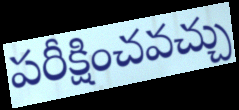
పరీక్షించవచ్చు